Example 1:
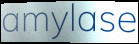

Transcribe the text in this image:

amylase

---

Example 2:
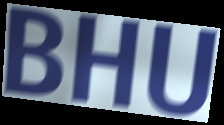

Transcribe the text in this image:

BHU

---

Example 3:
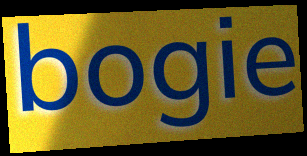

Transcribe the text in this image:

bogie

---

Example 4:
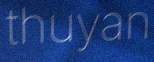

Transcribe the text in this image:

thuyan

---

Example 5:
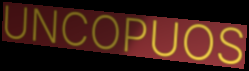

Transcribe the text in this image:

UNCOPUOS